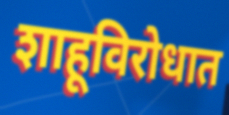
शाहूविरोधात